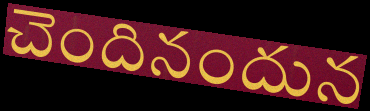
చెందినందున